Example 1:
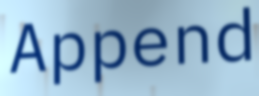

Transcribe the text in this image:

Append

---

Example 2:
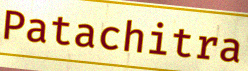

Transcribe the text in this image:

Patachitra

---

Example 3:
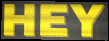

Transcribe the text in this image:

HEY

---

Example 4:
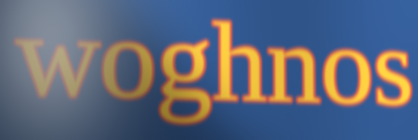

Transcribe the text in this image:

woghnos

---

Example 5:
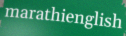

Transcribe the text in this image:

marathienglish